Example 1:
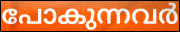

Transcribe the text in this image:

പോകുന്നവർ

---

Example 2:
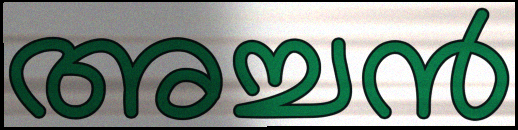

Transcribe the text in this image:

അച്ചൻ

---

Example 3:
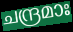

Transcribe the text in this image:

ചന്ദ്രമാഃ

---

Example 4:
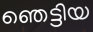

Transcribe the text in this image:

ഞെട്ടിയ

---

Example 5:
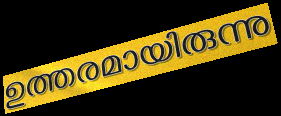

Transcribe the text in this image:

ഉത്തരമായിരുന്നു